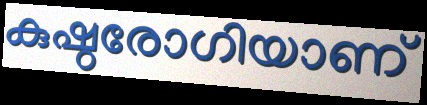
കുഷ്ഠരോഗിയാണ്